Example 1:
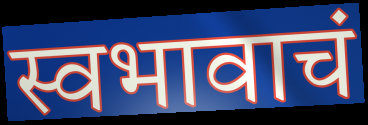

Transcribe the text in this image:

स्वभावाचं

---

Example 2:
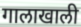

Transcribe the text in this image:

गालाखाली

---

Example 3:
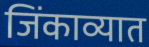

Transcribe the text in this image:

जिंकाव्यात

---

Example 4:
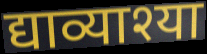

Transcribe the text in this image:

द्याव्याश्या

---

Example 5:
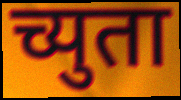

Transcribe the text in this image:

च्युता